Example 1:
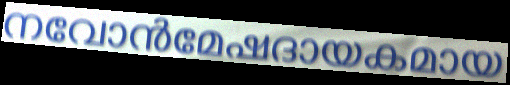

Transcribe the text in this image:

നവോൻമേഷദായകമായ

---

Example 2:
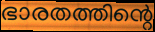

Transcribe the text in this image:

ഭാരതത്തിന്റെ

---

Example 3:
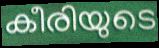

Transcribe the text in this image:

കീരിയുടെ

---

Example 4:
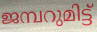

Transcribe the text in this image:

ജമ്പറുമിട്ട്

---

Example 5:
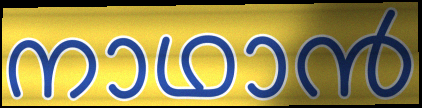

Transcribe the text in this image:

നാഥാൻ